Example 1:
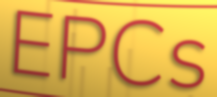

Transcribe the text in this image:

EPCs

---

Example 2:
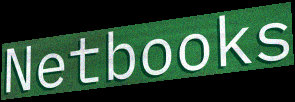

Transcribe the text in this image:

Netbooks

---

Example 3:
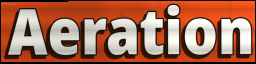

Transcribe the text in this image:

Aeration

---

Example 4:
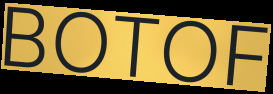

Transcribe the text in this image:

BOTOF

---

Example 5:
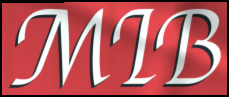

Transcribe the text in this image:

MIB